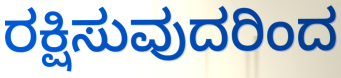
ರಕ್ಷಿಸುವುದರಿಂದ